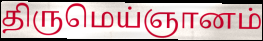
திருமெய்ஞானம்